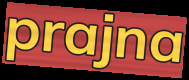
prajna